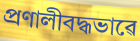
প্ৰণালীবদ্ধভাৱে